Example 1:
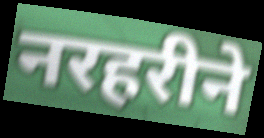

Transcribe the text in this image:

नरहरीने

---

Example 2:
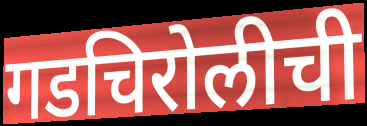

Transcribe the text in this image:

गडचिरोलीची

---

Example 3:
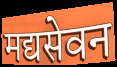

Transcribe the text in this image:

मद्यसेवन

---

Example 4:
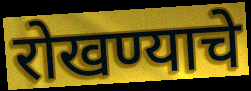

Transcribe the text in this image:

रोखण्याचे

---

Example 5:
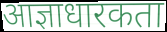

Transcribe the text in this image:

आज्ञाधारकता